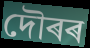
দৌৰৰ